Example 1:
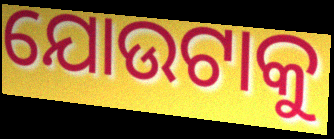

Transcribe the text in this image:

ଯୋଉଟାକୁ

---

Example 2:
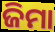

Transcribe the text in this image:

ଜିମା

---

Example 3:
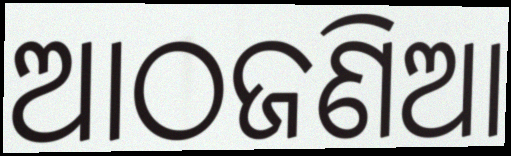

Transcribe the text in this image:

ଆଠଜଣିଆ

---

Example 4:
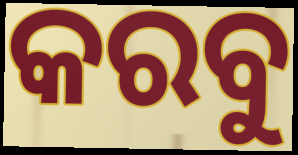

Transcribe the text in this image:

କରବୁ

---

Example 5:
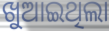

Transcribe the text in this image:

ଖୁଆଇଥିଲା